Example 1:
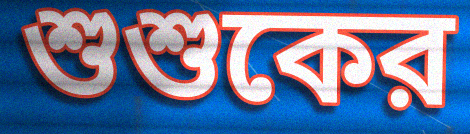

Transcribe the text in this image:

শুশুকের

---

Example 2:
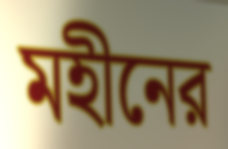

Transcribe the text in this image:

মহীনের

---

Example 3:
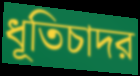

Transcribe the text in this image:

ধূতিচাদর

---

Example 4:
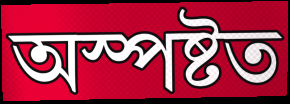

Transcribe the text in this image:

অস্পষ্টত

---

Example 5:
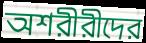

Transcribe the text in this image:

অশরীরীদের